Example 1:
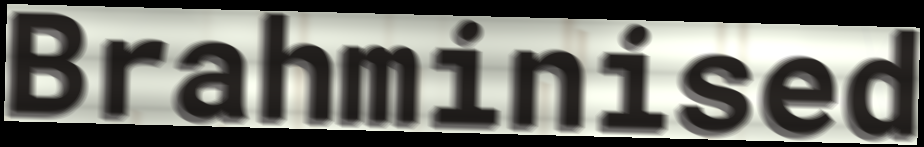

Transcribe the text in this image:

Brahminised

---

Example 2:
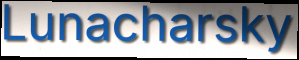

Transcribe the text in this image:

Lunacharsky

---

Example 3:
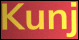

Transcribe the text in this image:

Kunj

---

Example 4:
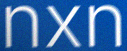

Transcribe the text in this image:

nxn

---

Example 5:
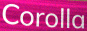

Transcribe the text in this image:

Corolla